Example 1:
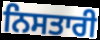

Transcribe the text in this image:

ਨਿਸਤਾਰੀ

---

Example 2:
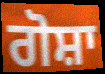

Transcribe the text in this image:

ਗੋਸ਼ਾ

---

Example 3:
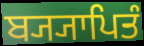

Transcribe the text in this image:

ਬ੍ਯ੍ਯਾਪਿਤੰ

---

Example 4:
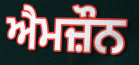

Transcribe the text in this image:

ਐਮਜ਼ੌਨ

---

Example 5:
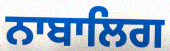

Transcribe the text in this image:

ਨਾਬਾਲਿਗ